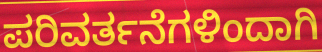
ಪರಿವರ್ತನೆಗಳಿಂದಾಗಿ